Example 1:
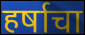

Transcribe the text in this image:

हर्षाचा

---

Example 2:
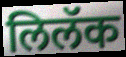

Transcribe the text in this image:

लिलॅक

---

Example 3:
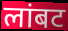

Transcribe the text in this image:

लांबट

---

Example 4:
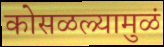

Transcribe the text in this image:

कोसळल्यामुळं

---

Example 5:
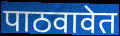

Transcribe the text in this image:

पाठवावेत